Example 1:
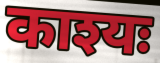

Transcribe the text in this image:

काश्यः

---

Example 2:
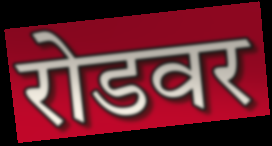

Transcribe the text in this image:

रोडवर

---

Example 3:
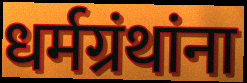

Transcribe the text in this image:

धर्मग्रंथांना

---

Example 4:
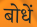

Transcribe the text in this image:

बोधें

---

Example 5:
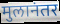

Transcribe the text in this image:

मुलानंतर